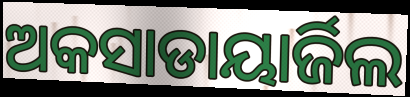
ଅକସାଡାୟାର୍ଜିଲ